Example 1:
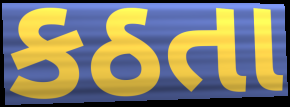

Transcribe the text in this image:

કઠતા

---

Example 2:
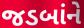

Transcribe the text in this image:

જડબાંને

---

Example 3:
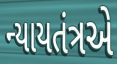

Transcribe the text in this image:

ન્યાયતંત્રએ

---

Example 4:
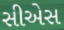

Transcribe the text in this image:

સીએસ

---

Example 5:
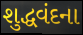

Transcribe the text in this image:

શુદ્ધવંદના